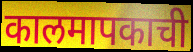
कालमापकाची